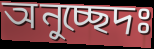
অনুচ্ছেদঃ